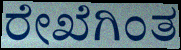
ರೇಖೆಗಿಂತ